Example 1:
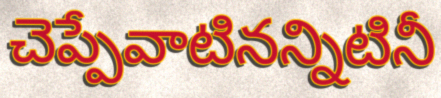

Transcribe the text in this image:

చెప్పేవాటినన్నిటినీ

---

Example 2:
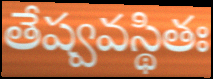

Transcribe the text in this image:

తేష్వవస్థితః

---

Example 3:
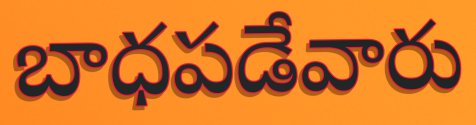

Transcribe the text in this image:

బాధపడేవారు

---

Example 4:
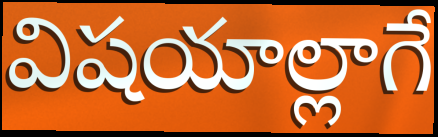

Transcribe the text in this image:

విషయాల్లాగే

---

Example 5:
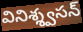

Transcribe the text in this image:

వినిశ్శ్వసన్